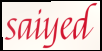
saiyed